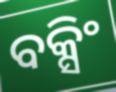
ବକ୍ସିଂ